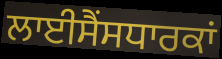
ਲਾਈਸੈਂਸਧਾਰਕਾਂ